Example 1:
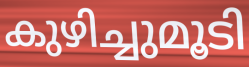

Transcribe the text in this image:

കുഴിച്ചുമൂടി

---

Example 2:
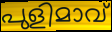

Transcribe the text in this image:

പുളിമാവ്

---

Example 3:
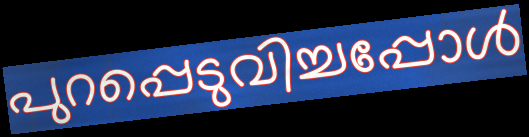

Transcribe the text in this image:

പുറപ്പെടുവിച്ചപ്പോൾ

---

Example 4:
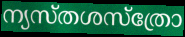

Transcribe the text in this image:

ന്യസ്തശസ്ത്രോ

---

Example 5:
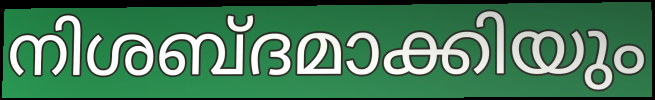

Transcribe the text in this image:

നിശബ്ദമാക്കിയും